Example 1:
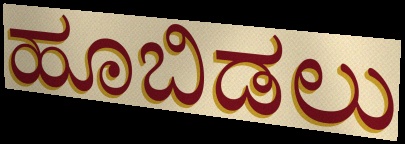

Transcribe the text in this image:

ಹೂಬಿಡಲು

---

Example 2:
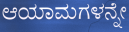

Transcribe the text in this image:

ಆಯಾಮಗಳನ್ನೇ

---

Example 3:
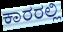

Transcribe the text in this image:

ಕಾರರಲ್ಲಿ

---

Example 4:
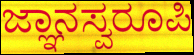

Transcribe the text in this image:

ಜ್ಞಾನಸ್ವರೂಪಿ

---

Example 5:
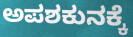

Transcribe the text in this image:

ಅಪಶಕುನಕ್ಕೆ